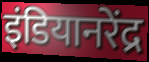
इंडियानरेंद्र